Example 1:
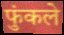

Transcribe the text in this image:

फुंकले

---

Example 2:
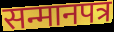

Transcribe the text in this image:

सन्मानपत्र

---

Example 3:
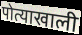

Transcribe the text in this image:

पोत्याखाली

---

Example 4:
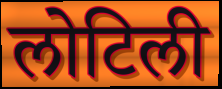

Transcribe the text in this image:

लोटिली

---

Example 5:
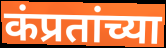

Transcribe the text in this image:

कंप्रतांच्या